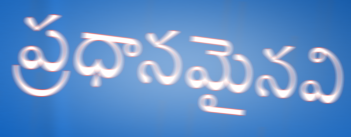
ప్రధానమైనవి